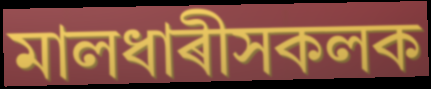
মালধাৰীসকলক